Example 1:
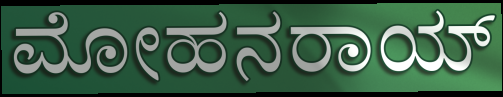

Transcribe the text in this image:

ಮೋಹನರಾಯ್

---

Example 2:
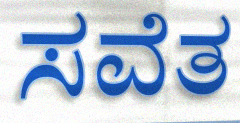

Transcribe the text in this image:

ಸವೆತ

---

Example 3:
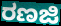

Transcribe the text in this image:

ರಣಜಿ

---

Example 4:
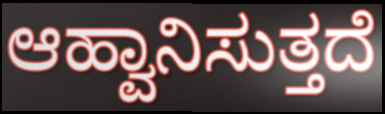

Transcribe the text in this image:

ಆಹ್ವಾನಿಸುತ್ತದೆ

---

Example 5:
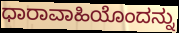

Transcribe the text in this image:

ಧಾರಾವಾಹಿಯೊಂದನ್ನು